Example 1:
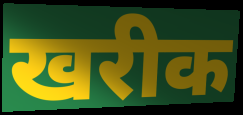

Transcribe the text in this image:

खरीक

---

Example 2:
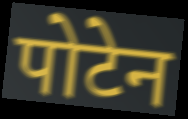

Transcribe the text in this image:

पोटेन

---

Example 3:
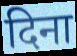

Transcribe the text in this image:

दिना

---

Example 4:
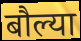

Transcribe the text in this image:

बौल्या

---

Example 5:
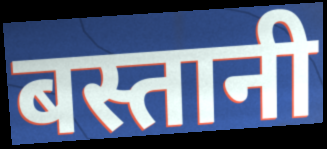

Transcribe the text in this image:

बस्तानी